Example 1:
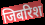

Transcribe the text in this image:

जिबरिश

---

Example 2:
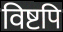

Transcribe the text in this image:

विष्टपि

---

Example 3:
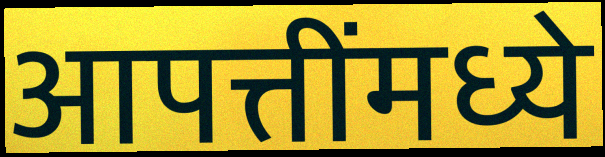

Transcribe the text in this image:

आपत्तींमध्ये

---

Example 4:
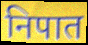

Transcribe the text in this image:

निपात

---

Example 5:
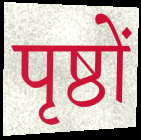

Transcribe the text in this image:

पृष्ठों